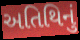
અતિથિનું